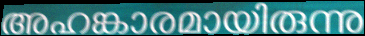
അഹങ്കാരമായിരുന്നു